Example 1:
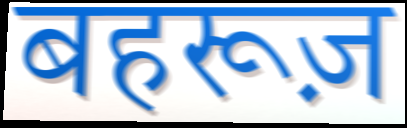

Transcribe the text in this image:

बहरूज़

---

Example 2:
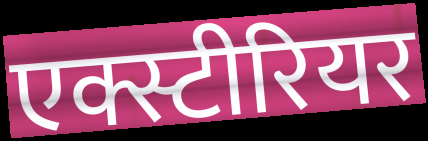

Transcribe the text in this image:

एक्स्टीरियर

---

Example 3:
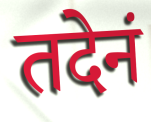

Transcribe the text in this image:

तदेनं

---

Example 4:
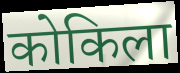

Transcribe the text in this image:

कोकिला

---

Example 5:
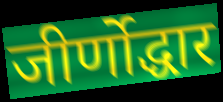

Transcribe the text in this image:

जीर्णोद्धार